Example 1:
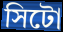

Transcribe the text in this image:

সিটো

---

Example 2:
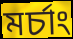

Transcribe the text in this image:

মৰ্চাং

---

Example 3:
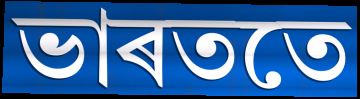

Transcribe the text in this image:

ভাৰততে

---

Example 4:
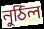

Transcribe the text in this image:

নুঠিল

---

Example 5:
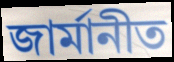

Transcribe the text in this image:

জাৰ্মানীত